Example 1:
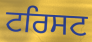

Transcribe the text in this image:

ਟਰਿਸਟ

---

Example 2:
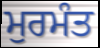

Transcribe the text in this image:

ਮੁਰਮੰਤ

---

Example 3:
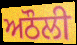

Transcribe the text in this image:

ਅਠੌਲੀ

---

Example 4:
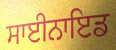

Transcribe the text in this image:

ਸਾਈਨਾਇਡ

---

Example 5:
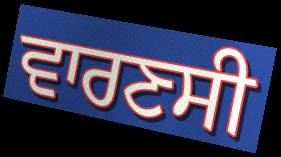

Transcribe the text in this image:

ਵਾਰਣਸੀ